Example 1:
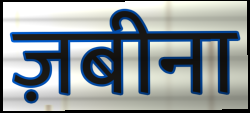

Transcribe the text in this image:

ज़बीना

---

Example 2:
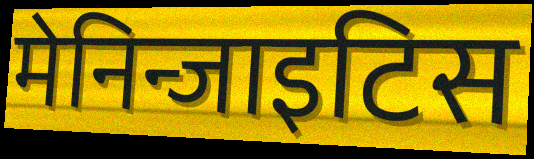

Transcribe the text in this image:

मेनिन्जाइटिस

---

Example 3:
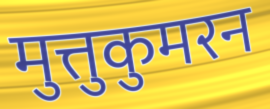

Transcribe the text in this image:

मुत्तुकुमरन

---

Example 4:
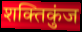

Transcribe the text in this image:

शक्तिकुंज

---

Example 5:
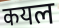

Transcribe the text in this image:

कयल